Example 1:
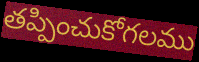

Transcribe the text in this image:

తప్పించుకోగలము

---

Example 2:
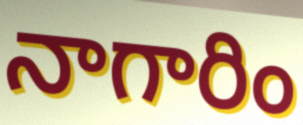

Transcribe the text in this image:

నాగారిం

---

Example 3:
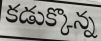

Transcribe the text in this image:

కడుక్కొన్న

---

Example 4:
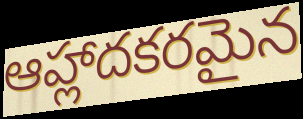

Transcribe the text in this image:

ఆహ్లాదకరమైన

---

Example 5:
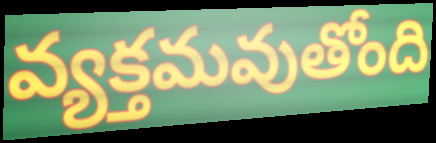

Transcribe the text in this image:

వ్యక్తమవుతోంది